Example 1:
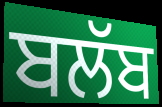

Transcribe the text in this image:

ਬਲੱਬ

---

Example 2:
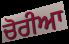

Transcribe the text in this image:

ਚੋਰੀਆ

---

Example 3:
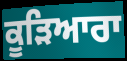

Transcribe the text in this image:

ਕੂੜਿਆਰਾ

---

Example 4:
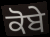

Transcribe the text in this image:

ਕੋਬੇ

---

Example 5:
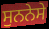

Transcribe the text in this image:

ਸੁਨਨੇਸੇ